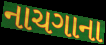
નાચગાના